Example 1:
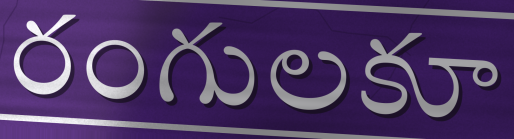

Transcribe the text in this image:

రంగులకూ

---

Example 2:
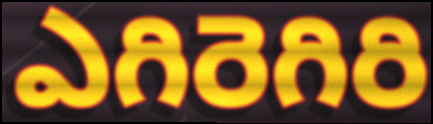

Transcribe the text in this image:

ఎగిరెగిరి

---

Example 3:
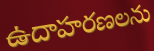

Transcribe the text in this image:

ఉదాహరణలను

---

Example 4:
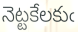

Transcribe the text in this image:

నెట్టకేలకుఁ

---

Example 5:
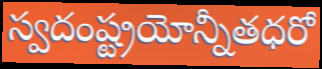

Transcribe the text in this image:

స్వదంష్ట్రయోన్నీతధరో